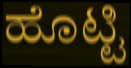
ಹೊಟ್ಟಿ